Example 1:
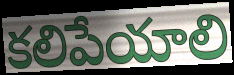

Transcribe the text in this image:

కలిపేయాలి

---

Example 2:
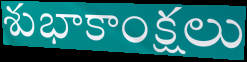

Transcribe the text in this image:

శుభాకాంక్షలు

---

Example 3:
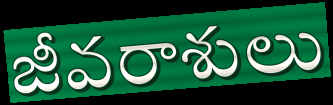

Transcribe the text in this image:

జీవరాశులు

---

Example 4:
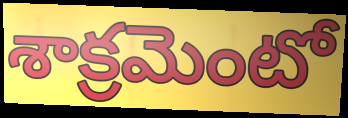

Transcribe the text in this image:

శాక్రమెంటో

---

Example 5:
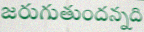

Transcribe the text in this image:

జరుగుతుందన్నది